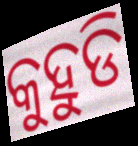
କୁହୁଡି